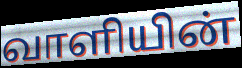
வாளியின்